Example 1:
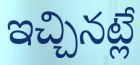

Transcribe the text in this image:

ఇచ్చినట్లే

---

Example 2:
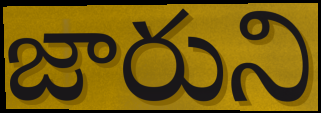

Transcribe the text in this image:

జారుని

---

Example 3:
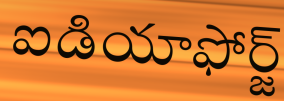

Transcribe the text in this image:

ఐడియాఫోర్జ్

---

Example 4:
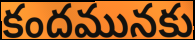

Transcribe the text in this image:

కందమునకు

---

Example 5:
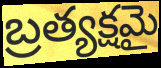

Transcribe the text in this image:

బ్రత్యక్షమై